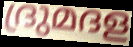
ദ്രുമദള